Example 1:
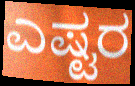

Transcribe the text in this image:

ಎಷ್ಟರ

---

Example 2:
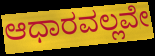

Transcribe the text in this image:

ಆಧಾರವಲ್ಲವೇ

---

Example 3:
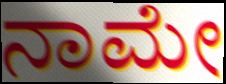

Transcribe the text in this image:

ನಾಮೇ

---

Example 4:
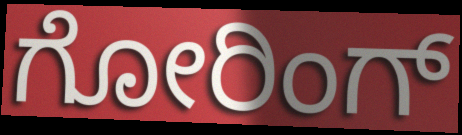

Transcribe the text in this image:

ಗೋರಿಂಗ್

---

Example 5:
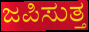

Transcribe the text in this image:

ಜಪಿಸುತ್ತ